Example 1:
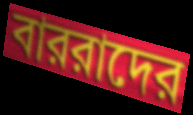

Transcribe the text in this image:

বাররাদের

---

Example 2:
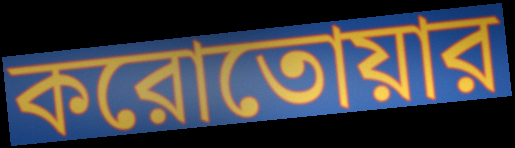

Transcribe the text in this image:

করোতোয়ার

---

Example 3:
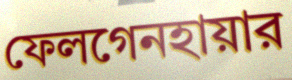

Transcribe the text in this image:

ফেলগেনহায়ার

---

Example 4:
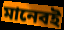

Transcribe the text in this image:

মানেবই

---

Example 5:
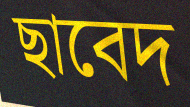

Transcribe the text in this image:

ছাবেদ